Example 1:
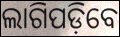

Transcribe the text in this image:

ଲାଗିପଡ଼ିବେ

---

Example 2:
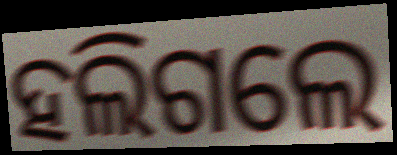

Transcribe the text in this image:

ହଲିଗଲେ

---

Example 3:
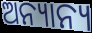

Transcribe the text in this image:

ଅନ୍ୟାନ୍ଯ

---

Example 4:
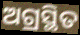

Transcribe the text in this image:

ଅଗ୍ରସ୍ଥିତ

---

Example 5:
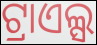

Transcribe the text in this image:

ଟ୍ରାଏଲ୍ସ